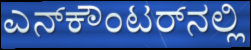
ಎನ್‌ಕೌಂಟರ್‌ನಲ್ಲಿ